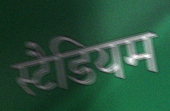
स्टैडियम